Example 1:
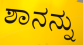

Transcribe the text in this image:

ಶಾನನ್ನು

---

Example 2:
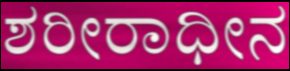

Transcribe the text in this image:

ಶರೀರಾಧೀನ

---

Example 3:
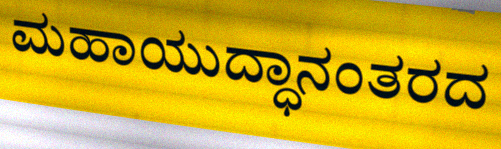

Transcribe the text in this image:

ಮಹಾಯುದ್ಧಾನಂತರದ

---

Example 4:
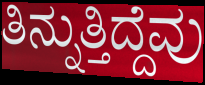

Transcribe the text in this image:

ತಿನ್ನುತ್ತಿದ್ದೆವು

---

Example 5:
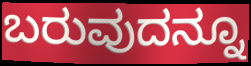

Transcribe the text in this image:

ಬರುವುದನ್ನೂ